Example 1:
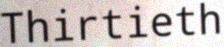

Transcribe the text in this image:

Thirtieth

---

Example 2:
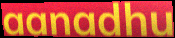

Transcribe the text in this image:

aanadhu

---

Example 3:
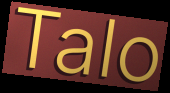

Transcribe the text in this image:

Talo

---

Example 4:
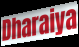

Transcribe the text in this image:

Dharaiya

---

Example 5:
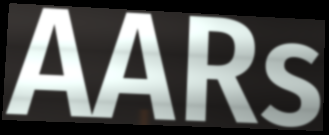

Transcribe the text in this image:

AARs